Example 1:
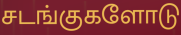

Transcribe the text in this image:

சடங்குகளோடு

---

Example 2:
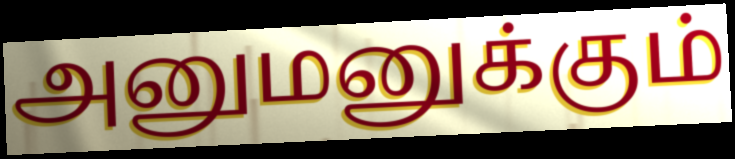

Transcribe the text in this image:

அனுமனுக்கும்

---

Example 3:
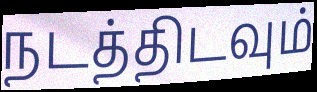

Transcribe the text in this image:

நடத்திடவும்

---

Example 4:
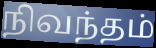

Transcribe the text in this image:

நிவந்தம்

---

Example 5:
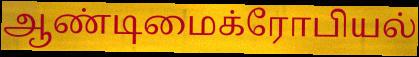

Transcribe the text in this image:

ஆண்டிமைக்ரோபியல்